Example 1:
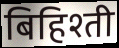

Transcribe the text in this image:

बिहिश्ती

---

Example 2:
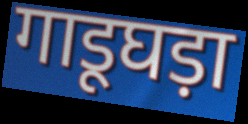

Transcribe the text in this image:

गाडूघड़ा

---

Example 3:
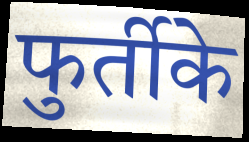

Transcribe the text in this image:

फुर्तीके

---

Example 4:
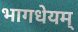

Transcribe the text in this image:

भागधेयम्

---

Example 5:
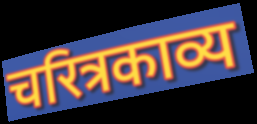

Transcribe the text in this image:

चरित्रकाव्य